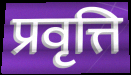
प्रवृत्ति